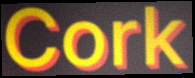
Cork